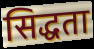
सिद्धता